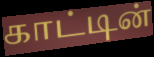
காட்டின்